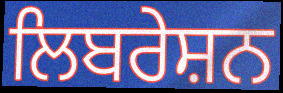
ਲਿਬਰੇਸ਼ਨ